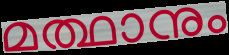
മത്ഥാനും